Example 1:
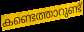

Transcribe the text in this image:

കണ്ടെത്താറുണ്ട്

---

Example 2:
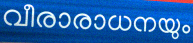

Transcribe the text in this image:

വീരാരാധനയും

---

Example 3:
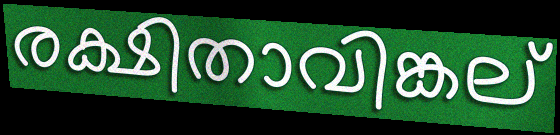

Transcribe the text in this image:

രക്ഷിതാവിങ്കല്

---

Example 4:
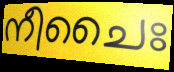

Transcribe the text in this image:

നീചൈഃ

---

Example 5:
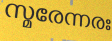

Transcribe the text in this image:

സ്മരേന്നരഃ